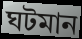
ঘটমান